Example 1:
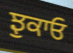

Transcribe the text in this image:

ਝੁਕਾਓ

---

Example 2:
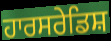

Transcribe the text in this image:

ਹਾਰਸਰੇਡਿਸ਼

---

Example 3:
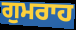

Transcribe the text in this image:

ਗੁਮਰਾਹ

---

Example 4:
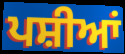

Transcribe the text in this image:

ਪਸ਼ੀਆਂ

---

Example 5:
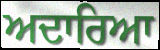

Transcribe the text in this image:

ਅਦਾਰਿਆ